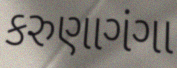
કરુણાગંગા